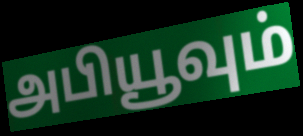
அபியூவும்